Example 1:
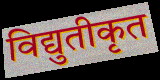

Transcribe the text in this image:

विद्युतीकृत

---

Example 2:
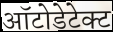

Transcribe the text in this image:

ऑटोडेटेक्ट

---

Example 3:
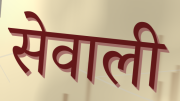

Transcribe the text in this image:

सेवाली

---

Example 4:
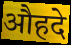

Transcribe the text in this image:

औहदे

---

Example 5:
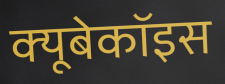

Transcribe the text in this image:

क्यूबेकॉइस